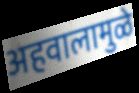
अहवालामुळे